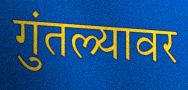
गुंतल्यावर